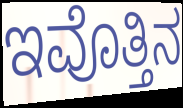
ಇವೊತ್ತಿನ